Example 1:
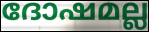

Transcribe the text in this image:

ദോഷമല്ല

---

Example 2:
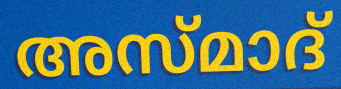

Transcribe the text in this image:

അസ്മാദ്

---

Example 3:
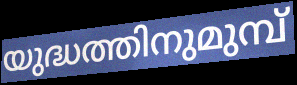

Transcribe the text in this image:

യുദ്ധത്തിനുമുമ്പ്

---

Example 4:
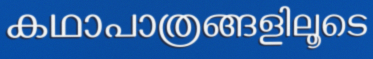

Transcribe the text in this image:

കഥാപാത്രങ്ങളിലൂടെ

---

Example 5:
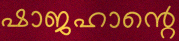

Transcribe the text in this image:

ഷാജഹാന്റെ